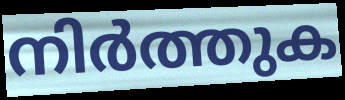
നിർത്തുക